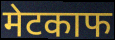
मेटकाफ